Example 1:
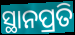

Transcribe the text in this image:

ସ୍ଥାନପ୍ରତି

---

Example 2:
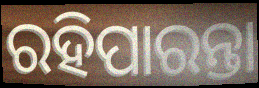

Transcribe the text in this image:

ରହିପାରନ୍ତା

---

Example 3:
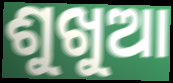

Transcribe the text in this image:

ଶୁଖୁଆ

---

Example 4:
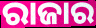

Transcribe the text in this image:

ରାଜାର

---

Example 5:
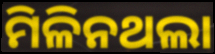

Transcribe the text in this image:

ମିଳିନଥଲା